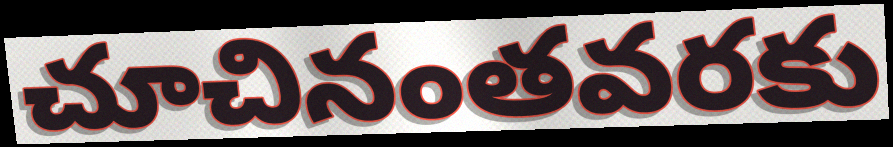
చూచినంతవరకు